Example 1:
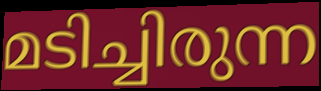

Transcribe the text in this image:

മടിച്ചിരുന്ന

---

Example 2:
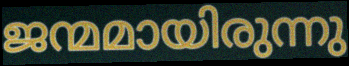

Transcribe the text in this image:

ജന്മമായിരുന്നു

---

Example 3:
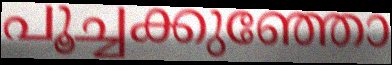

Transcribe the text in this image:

പൂച്ചക്കുഞ്ഞോ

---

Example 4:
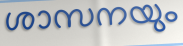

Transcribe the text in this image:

ശാസനയും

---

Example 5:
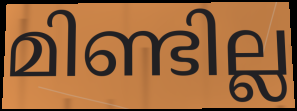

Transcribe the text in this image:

മിണ്ടില്ല